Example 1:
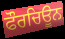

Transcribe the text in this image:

ਫੌਰਚਿਊਨ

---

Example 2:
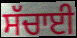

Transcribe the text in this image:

ਸੱਚਾਈ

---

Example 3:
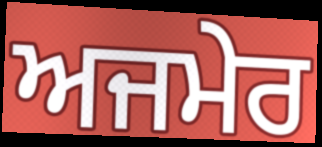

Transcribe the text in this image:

ਅਜਮੇਰ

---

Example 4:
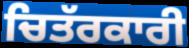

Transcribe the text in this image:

ਚਿਤੱਰਕਾਰੀ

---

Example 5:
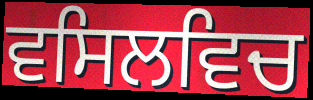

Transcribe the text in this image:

ਵਸਿਲਵਿਚ